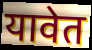
यावेत